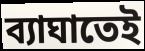
ব্যাঘাতেই